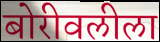
बोरीवलीला